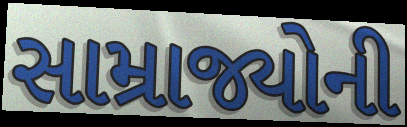
સામ્રાજ્યોની